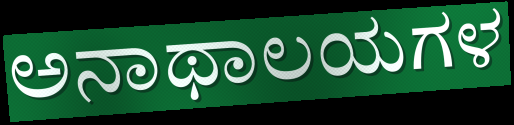
ಅನಾಥಾಲಯಗಳ